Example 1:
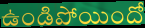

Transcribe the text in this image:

ఉండిపోయిందో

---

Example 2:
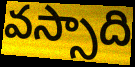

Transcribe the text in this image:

వస్సాది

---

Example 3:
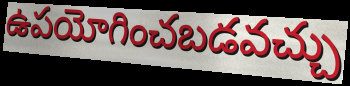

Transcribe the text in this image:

ఉపయోగించబడవచ్చు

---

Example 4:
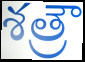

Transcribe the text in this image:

శత్రౌ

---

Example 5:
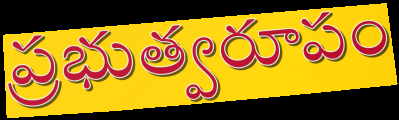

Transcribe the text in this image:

ప్రభుత్వరూపం